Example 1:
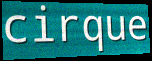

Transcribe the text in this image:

cirque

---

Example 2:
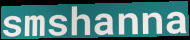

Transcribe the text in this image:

smshanna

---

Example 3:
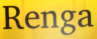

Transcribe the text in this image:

Renga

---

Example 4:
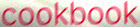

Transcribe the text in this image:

cookbook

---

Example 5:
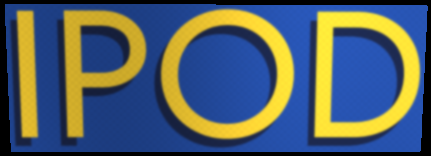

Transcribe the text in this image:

IPOD